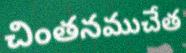
చింతనముచేత